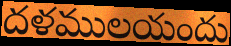
దళములయందు